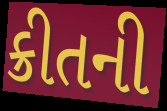
ક્રીતની